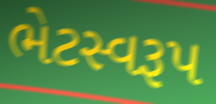
ભેટસ્વરૂપ